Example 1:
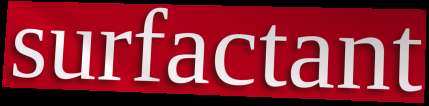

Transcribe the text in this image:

surfactant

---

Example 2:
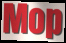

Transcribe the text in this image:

Mop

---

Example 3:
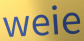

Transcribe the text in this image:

weie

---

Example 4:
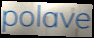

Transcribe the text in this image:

polave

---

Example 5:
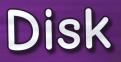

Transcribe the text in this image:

Disk